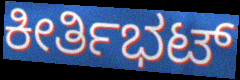
ಕೀರ್ತಿಭಟ್